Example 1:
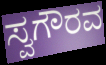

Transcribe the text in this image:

ಸ್ವಗೌರವ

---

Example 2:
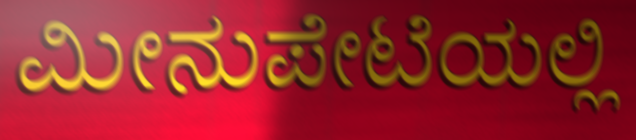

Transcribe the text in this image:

ಮೀನುಪೇಟೆಯಲ್ಲಿ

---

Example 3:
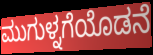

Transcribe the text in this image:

ಮುಗುಳ್ನಗೆಯೊಡನೆ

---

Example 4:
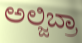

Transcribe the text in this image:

ಅಲ್ಜಿಬ್ರಾ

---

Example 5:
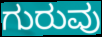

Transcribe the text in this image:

ಗುರುವು